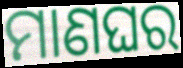
ମାଣଘର